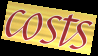
costs